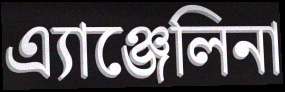
এ্যাঞ্জেলিনা